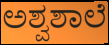
ಅಶ್ವಶಾಲೆ